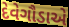
દેવેગૌડાએ